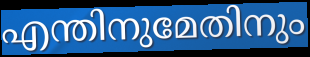
എന്തിനുമേതിനും